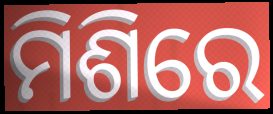
ମିଶିରେ